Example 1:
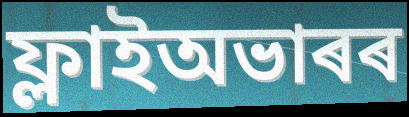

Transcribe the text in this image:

ফ্লাইঅভাৰৰ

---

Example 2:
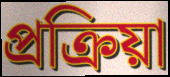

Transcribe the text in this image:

প্ৰক্ৰিয়া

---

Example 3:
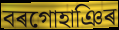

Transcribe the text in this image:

বৰগোহাঞিৰ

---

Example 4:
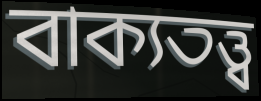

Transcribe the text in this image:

বাক্যতত্ত্ব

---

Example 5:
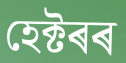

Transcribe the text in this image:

হেক্টৰৰ